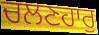
ਚਲਣਹਾਰੁ